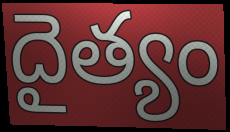
దైత్యం